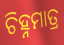
ଚିହ୍ନମାତ୍ର